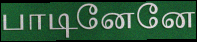
பாடினேனே